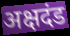
अक्षदंड